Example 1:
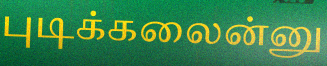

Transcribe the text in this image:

புடிக்கலைன்னு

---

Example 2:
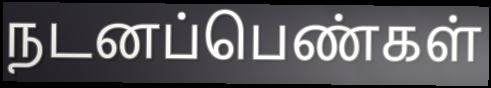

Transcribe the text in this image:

நடனப்பெண்கள்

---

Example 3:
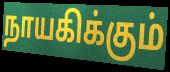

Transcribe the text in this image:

நாயகிக்கும்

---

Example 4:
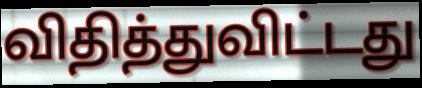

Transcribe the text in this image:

விதித்துவிட்டது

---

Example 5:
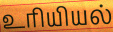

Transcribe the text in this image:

உரியியல்